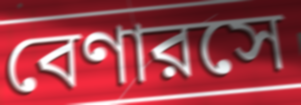
বেণারসে